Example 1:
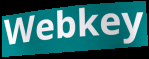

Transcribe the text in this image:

Webkey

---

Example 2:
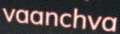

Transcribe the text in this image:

vaanchva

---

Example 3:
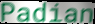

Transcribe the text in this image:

Padian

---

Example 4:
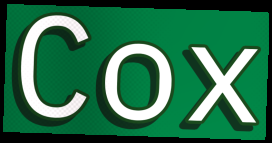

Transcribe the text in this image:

Cox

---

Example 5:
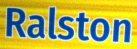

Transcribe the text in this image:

Ralston